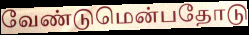
வேண்டுமென்பதோடு